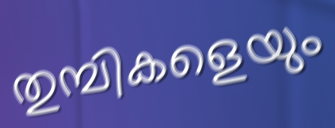
തുമ്പികളെയും